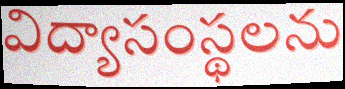
విద్యాసంస్థలను